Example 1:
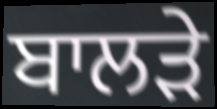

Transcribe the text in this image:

ਬਾਲੜੇ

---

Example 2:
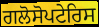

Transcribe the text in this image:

ਗਲੋਸੋਪਟੇਰਿਸ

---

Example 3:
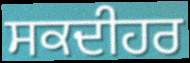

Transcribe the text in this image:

ਸਕਦੀਹਰ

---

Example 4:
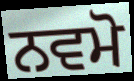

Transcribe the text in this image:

ਨਵਮੋ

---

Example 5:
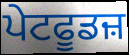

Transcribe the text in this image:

ਪੇਟਫੂਡਜ਼